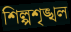
শিল্পশৃঙ্খল